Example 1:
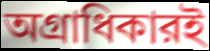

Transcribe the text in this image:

অগ্রাধিকারই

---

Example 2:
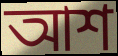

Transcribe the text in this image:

আশ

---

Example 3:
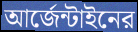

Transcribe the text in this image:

আর্জেন্টাইনের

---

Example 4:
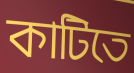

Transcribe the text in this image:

কাটিতে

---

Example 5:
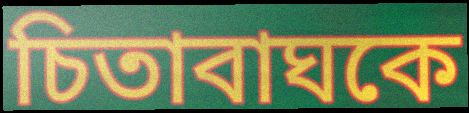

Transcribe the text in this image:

চিতাবাঘকে